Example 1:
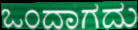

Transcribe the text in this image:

ಒಂದಾಗದು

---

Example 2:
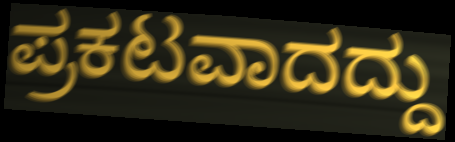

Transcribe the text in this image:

ಪ್ರಕಟವಾದದ್ದು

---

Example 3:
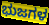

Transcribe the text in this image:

ಭುಜಗಳ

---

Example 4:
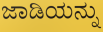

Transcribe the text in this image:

ಜಾಡಿಯನ್ನು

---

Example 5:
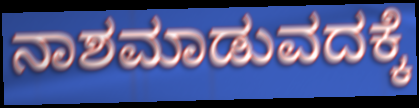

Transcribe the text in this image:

ನಾಶಮಾಡುವದಕ್ಕೆ